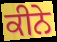
ਕੀਨੇ